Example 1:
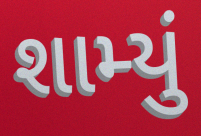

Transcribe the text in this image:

શામ્યું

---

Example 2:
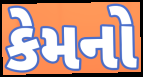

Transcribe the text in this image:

કેમનો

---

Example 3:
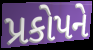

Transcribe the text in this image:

પ્રકોપને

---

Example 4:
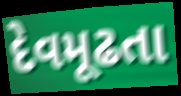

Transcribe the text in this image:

દેવમૂઢતા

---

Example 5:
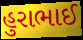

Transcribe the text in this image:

હુરાભાઈ